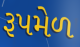
રૂપમેળ